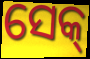
ସେକ୍